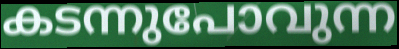
കടന്നുപോവുന്ന